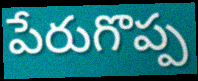
పేరుగొప్ప